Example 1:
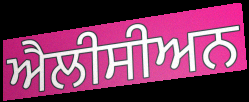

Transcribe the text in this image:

ਐਲੀਸੀਅਨ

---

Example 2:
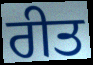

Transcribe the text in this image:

ਰੀਤ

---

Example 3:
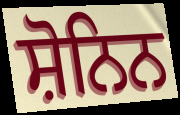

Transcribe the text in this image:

ਸ਼ੋਨਿਨ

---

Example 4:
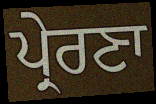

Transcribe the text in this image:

ਪ੍ਰੇਰਣਾ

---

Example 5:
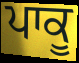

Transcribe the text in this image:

ਪਾਕੂ